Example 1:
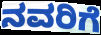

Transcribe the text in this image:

ನವರಿಗೆ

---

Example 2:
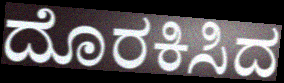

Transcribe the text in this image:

ದೊರಕಿಸಿದ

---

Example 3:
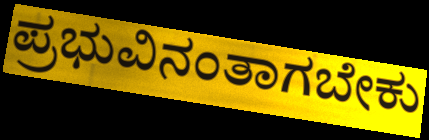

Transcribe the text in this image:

ಪ್ರಭುವಿನಂತಾಗಬೇಕು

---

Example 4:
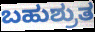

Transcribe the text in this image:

ಬಹುಶ್ರುತ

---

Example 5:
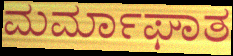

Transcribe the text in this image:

ಮರ್ಮಾಘಾತ